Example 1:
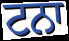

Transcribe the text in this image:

ਟਨਾ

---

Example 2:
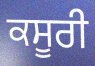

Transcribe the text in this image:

ਕਸੂਰੀ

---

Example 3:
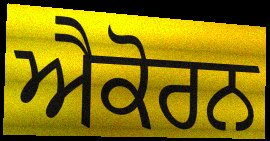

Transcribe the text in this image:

ਐਕੋਰਨ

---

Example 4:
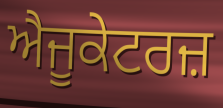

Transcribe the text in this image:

ਐਜੂਕੇਟਰਜ਼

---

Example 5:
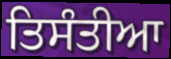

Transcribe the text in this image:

ਤਿਸੰਤੀਆ